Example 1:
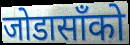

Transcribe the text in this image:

जोडासाँको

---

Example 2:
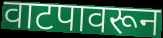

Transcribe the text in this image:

वाटपावरून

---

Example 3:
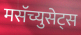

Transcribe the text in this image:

मसॅच्युसेट्स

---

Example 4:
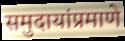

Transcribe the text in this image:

समुदायांप्रमाणे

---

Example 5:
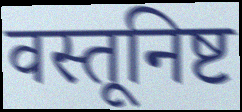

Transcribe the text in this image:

वस्तूनिष्ट